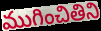
ముగించితిని